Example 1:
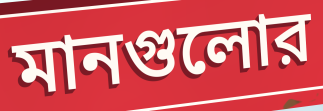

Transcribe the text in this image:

মানগুলোর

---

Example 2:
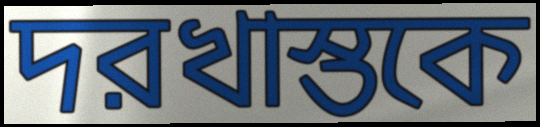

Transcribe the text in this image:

দরখাস্তকে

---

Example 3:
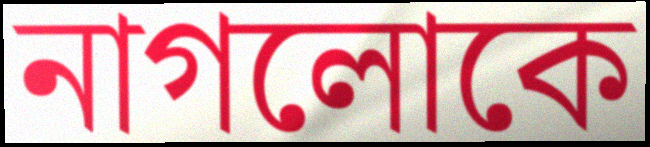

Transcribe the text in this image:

নাগলোকে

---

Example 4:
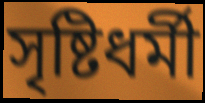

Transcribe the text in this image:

সৃষ্টিধর্মী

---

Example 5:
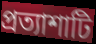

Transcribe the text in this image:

প্রত্যাশাটি